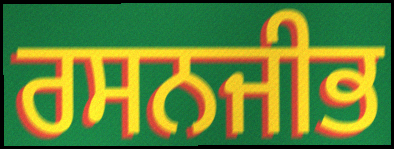
ਰਸਨਜੀਭ